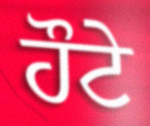
ਹੌਟੇ